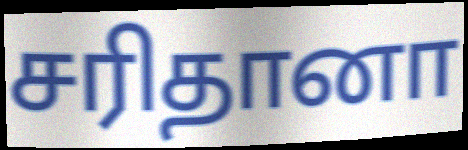
சரிதானா